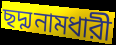
ছদ্মনামধারী